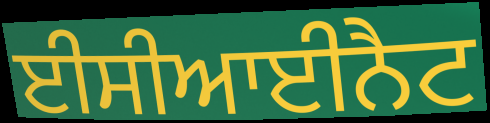
ਈਸੀਆਈਨੈਟ